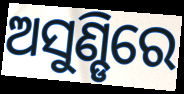
ଅସୁଣ୍ଡିରେ